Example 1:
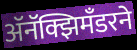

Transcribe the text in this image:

ॲनॅक्झिमँडरने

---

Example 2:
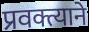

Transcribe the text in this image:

प्रवक्त्याने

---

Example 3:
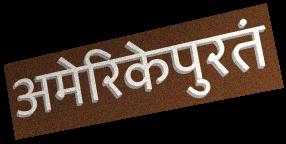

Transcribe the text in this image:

अमेरिकेपुरतं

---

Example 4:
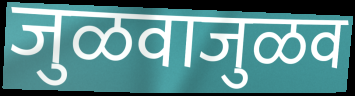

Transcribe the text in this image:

जुळवाजुळव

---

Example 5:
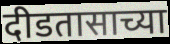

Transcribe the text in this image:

दीडतासाच्या